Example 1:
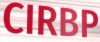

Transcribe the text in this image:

CIRBP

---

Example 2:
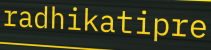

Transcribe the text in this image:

radhikatipre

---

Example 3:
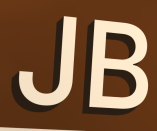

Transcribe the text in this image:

JB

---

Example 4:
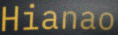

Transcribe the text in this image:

Hianao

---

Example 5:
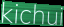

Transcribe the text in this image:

kichui